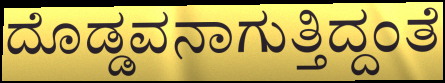
ದೊಡ್ಡವನಾಗುತ್ತಿದ್ದಂತೆ